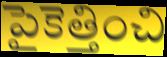
పైకెత్తించి